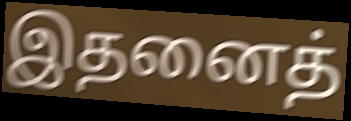
இதனைத்